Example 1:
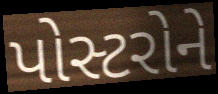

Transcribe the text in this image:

પોસ્ટરોને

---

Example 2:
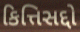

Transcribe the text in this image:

કિત્તિસદ્દો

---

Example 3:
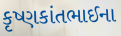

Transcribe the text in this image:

કૃષ્ણકાંતભાઈના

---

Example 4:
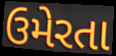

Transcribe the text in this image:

ઉમેરતા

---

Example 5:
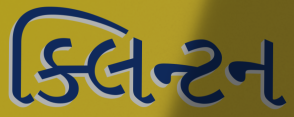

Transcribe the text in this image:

ક્લિન્ટન